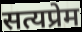
सत्यप्रेम